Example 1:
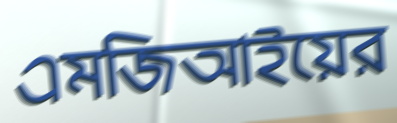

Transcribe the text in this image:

এমজিআইয়ের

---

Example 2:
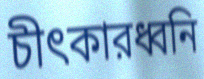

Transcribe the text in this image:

চীৎকারধ্বনি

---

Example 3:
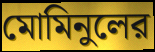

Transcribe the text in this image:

মোমিনুলের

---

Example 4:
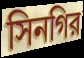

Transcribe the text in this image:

সিনগির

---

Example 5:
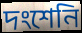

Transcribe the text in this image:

দংশেনি